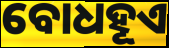
ବୋଧହୂଏ